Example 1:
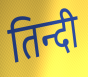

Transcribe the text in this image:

तिन्दी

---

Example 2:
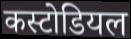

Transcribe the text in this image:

कस्टोडियल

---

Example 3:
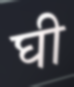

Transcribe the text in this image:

घी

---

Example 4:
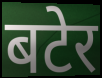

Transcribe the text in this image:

बटेर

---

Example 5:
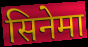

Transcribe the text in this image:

सिनेमा